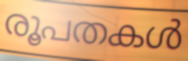
രൂപതകൾ